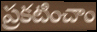
ప్రకటించాం